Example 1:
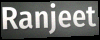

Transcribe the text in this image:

Ranjeet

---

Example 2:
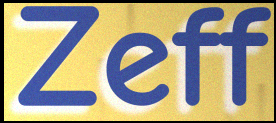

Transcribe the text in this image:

Zeff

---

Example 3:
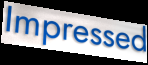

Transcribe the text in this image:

Impressed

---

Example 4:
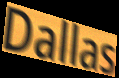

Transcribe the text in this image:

Dallas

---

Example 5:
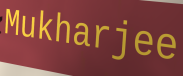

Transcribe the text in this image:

Mukharjee